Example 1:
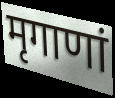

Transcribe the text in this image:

मृगाणां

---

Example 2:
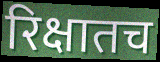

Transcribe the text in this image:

रिक्षातच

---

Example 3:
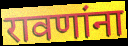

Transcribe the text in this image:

रावणांना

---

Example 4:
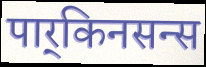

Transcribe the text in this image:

पार्किनसन्स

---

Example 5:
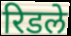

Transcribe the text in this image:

रिडले